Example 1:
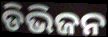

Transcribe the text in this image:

ଡିଭିଜନ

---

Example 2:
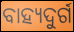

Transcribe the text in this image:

ବାହ୍ୟଦୁର୍ଗ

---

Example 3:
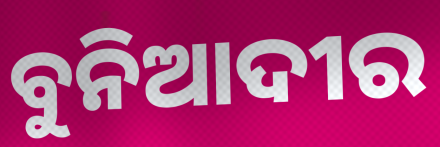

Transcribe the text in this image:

ବୁନିଆଦୀର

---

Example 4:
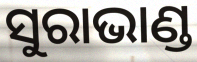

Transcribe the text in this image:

ସୁରାଭାଣ୍ଡ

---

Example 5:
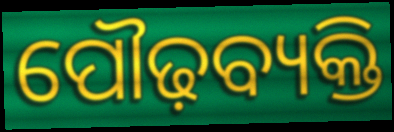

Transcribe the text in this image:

ପୌଢ଼ବ୍ୟକ୍ତି